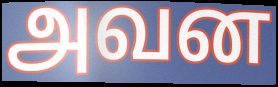
அவன